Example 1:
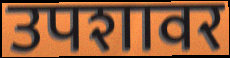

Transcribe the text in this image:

उपशावर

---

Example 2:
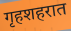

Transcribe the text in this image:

गृहशहरात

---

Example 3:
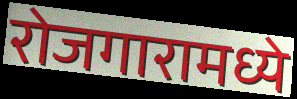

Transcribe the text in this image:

रोजगारामध्ये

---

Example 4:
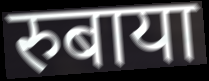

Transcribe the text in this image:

रुबाया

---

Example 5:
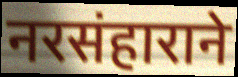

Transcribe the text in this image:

नरसंहाराने